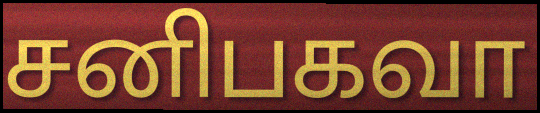
சனிபகவா